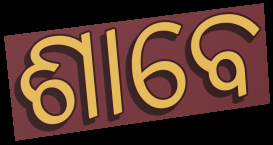
ଶାବେ